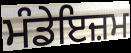
ਮੰਡੇਇਜ਼ਮ